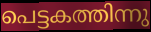
പെട്ടകത്തിന്നു